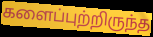
களைப்புற்றிருந்த